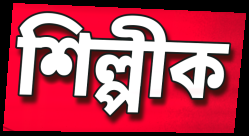
শিল্পীক